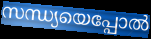
സന്ധ്യയെപ്പോൽ